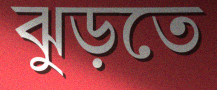
ঝুড়তে